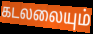
கடலலையும்